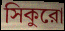
সিকুরো